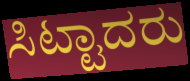
ಸಿಟ್ಟಾದರು